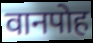
वानपोह